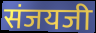
संजयजी